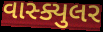
વાસ્ક્યુલર